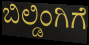
ಬಿಲ್ಡಿಂಗಿಗೆ